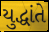
યુદ્ધાંતે